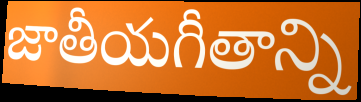
జాతీయగీతాన్ని